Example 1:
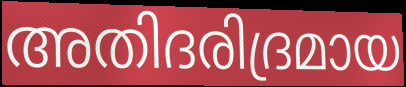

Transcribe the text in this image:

അതിദരിദ്രമായ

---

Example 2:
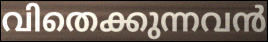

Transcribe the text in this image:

വിതെക്കുന്നവൻ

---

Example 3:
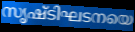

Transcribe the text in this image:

സൃഷ്ടിഘടനയെ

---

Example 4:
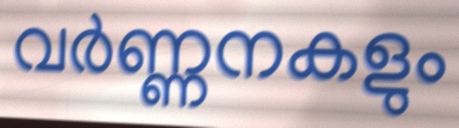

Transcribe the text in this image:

വർണ്ണനകളും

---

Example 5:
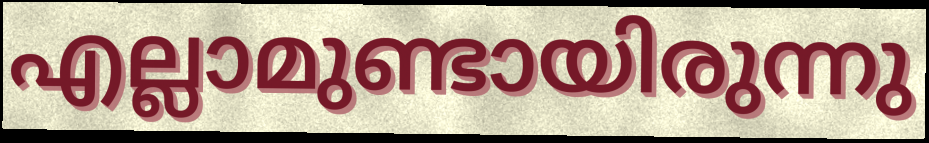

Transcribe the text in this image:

എല്ലാമുണ്ടായിരുന്നു